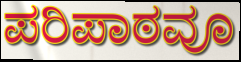
ಪರಿಪಾಠವೂ